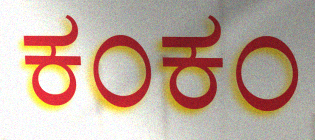
ಕಂಕಂ